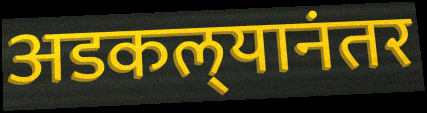
अडकल्यानंतर